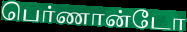
பெர்ணான்டோ